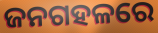
ଜନଗହଳରେ